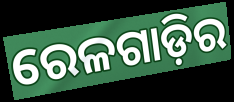
ରେଳଗାଡ଼ିର